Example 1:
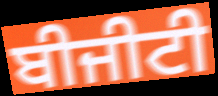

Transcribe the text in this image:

ਬੀਜੀਟੀ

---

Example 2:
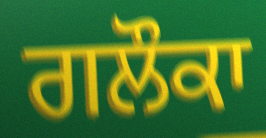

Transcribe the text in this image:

ਗਲੌਕਾ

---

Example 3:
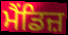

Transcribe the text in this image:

ਮੈਂਡਿਜ਼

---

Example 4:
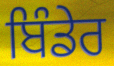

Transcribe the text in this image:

ਬਿੰਡੇਰ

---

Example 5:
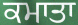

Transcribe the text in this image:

ਕਮਾਤਾ